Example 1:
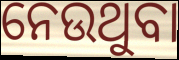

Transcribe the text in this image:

ନେଉଥୁବା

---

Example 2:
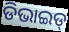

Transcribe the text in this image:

ଡିଭାଇଡ୍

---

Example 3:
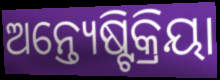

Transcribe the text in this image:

ଅନ୍ତ୍ୟେଷ୍ଟିକ୍ରିୟା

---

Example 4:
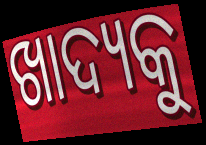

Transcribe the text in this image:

ଖାଦ୍ୟକୁ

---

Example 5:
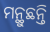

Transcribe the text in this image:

ମନ୍ଥୁଛନ୍ତି